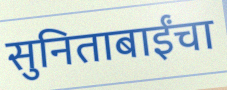
सुनिताबाईंचा